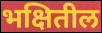
भक्षितील